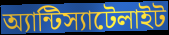
অ্যান্টিস্যাটেলাইট